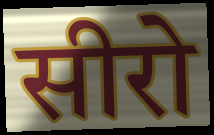
सीरो